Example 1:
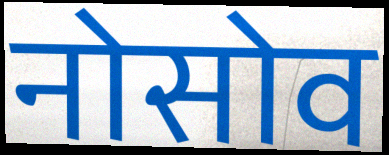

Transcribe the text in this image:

नोसोव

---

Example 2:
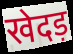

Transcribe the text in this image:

खेदड़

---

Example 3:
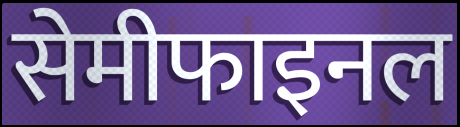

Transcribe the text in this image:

सेमीफाइनल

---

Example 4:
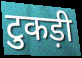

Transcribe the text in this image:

टुकड़ी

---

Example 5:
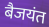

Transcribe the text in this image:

बैजयंत